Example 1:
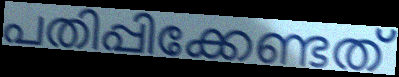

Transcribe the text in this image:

പതിപ്പിക്കേണ്ടത്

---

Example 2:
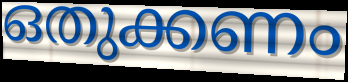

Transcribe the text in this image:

ഒതുക്കണം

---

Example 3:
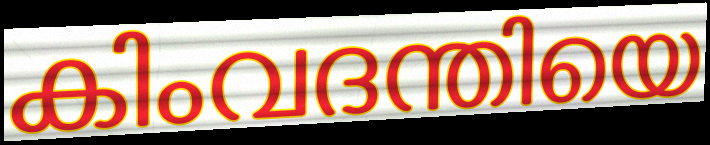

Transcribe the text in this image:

കിംവദന്തിയെ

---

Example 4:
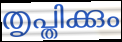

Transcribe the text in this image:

തൃപ്തിക്കും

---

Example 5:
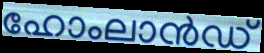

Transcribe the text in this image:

ഹോംലാൻഡ്